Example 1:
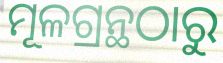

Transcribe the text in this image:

ମୂଳଗ୍ରନ୍ଥଠାରୁ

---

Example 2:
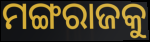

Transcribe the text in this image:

ମଙ୍ଗରାଜକୁ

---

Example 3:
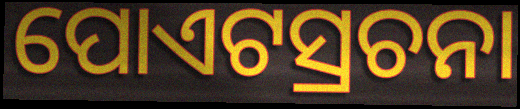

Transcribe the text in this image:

ପୋଏଟସ୍ରଚନା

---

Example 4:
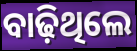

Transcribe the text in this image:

ବାଢ଼ିଥିଲେ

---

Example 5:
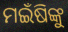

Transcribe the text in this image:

ମଇଁଷିଙ୍କୁ